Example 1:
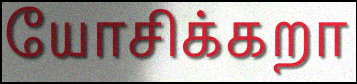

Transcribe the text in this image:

யோசிக்கறா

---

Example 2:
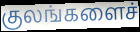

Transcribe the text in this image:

குலங்களைச்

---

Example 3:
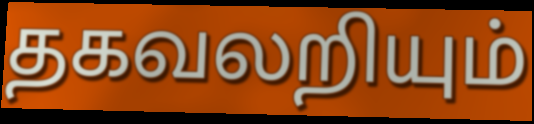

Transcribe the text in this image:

தகவலறியும்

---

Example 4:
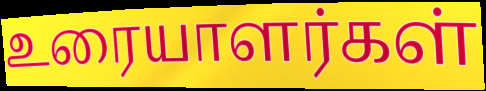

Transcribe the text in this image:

உரையாளர்கள்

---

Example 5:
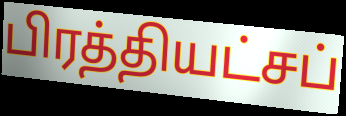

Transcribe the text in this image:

பிரத்தியட்சப்